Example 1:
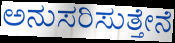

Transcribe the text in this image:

ಅನುಸರಿಸುತ್ತೇನೆ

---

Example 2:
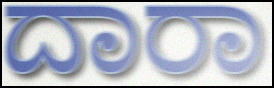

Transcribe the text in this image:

ದಾರಾ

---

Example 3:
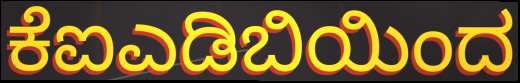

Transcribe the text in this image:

ಕೆಐಎಡಿಬಿಯಿಂದ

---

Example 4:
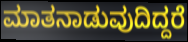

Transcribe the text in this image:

ಮಾತನಾಡುವುದಿದ್ದರೆ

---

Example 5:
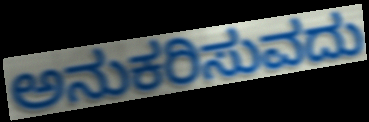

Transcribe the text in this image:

ಅನುಕರಿಸುವದು